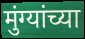
मुंग्यांच्या